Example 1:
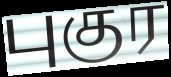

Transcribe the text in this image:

புகுர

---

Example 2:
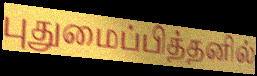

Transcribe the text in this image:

புதுமைப்பித்தனில்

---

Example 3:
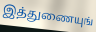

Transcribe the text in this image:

இத்துணையுங்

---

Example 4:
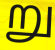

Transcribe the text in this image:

று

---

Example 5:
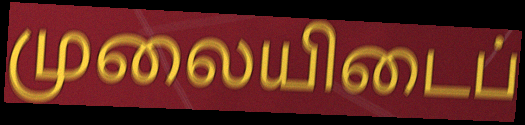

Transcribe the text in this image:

முலையிடைப்